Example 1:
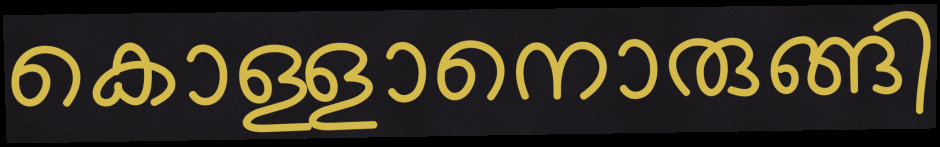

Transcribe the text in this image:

കൊള്ളാനൊരുങ്ങി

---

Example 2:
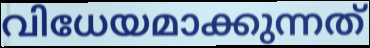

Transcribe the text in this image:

വിധേയമാക്കുന്നത്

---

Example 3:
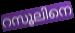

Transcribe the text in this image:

റസൂലിനെ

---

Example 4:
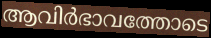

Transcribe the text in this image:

ആവിർഭാവത്തോടെ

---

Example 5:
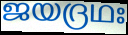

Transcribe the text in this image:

ജയദ്രഥഃ